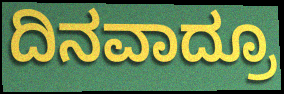
ದಿನವಾದ್ರೂ